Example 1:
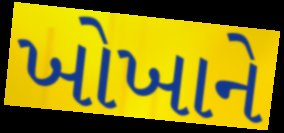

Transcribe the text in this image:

ખોખાને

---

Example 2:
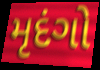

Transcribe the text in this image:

મૃદંગો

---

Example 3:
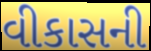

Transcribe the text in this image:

વીકાસની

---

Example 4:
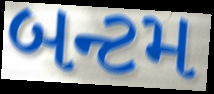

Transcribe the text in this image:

બન્ટમ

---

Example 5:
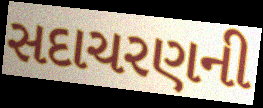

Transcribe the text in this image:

સદાચરણની